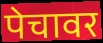
पेचावर